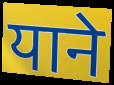
याने